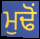
ਮੁਢੋਂ